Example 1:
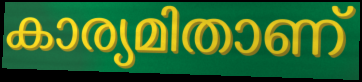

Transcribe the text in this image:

കാര്യമിതാണ്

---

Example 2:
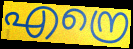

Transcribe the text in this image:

എന്രെ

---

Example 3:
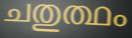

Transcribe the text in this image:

ചതുത്ഥം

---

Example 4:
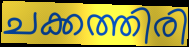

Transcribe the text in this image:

ചക്കത്തിരി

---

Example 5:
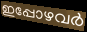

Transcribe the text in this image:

ഇപ്പോഴവർ